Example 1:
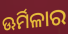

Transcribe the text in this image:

ଊର୍ମିଳାର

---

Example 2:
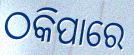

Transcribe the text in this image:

ଠକିପାରେ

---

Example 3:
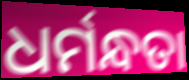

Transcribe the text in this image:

ଧର୍ମନ୍ଧତା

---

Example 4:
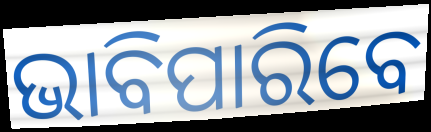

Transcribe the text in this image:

ଭାବିପାରିବେ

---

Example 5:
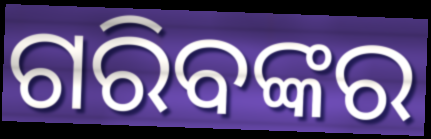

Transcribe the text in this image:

ଗରିବଙ୍କର